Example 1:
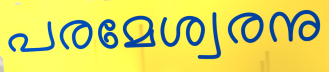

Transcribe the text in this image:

പരമേശ്വരനു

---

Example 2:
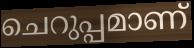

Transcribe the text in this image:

ചെറുപ്പമാണ്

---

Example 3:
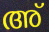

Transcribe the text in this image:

അ്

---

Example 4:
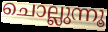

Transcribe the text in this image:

ചൊല്ലുന്നൂ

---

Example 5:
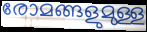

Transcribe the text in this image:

രോമങ്ങളുമുള്ള